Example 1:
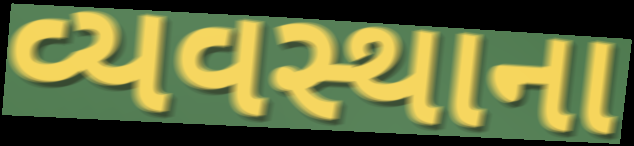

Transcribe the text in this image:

વ્યવસ્થાના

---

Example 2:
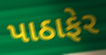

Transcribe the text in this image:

પાઠાફેર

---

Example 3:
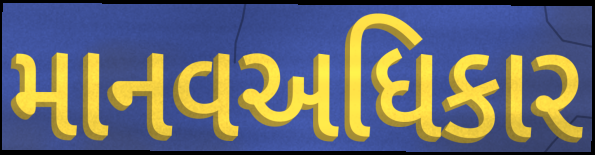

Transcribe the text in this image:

માનવઅધિકાર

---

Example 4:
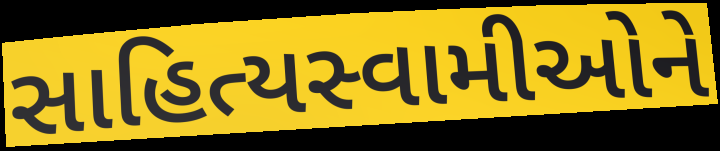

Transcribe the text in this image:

સાહિત્યસ્વામીઓને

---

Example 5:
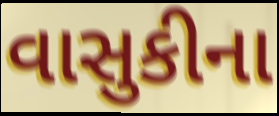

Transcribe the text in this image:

વાસુકીના